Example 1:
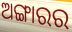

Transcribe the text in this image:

ଅଙ୍ଗାରର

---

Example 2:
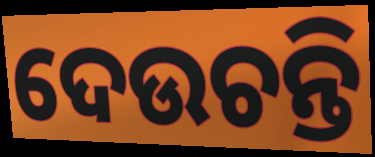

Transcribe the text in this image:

ଦେଉଚନ୍ତି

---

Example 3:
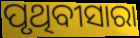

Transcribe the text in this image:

ପୃଥିବୀସାରା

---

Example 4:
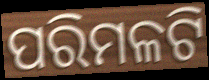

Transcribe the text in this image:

ପରିମଳଟି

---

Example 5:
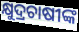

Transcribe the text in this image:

କ୍ଷୁଦ୍ରଚାଷୀଙ୍କ